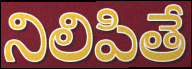
నిలిపితే